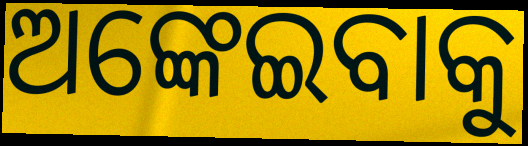
ଅଙ୍କେଇବାକୁ